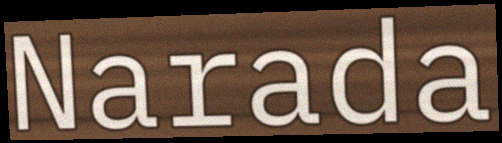
Narada